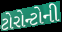
ટોરોન્ટોની